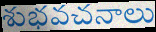
శుభవచనాలు